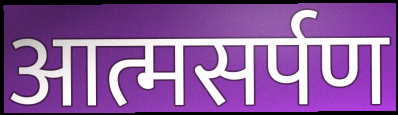
आत्मसर्पण